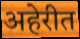
अहेरीत